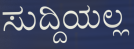
ಸುದ್ದಿಯಲ್ಲ